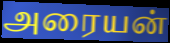
அரையன்